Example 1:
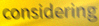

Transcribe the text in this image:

considering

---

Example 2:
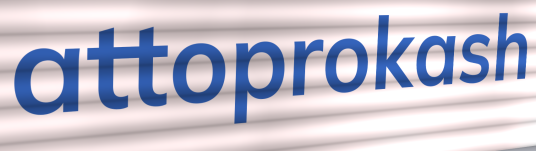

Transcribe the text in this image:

attoprokash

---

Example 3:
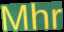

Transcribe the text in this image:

Mhr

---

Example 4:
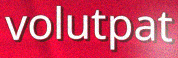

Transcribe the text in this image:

volutpat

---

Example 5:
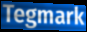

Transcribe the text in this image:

Tegmark